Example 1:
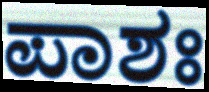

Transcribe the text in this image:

ಪಾಶಃ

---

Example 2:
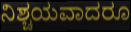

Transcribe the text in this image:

ನಿಶ್ಚಯವಾದರೂ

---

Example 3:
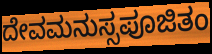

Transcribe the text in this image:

ದೇವಮನುಸ್ಸಪೂಜಿತಂ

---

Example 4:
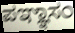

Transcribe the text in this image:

ಪಞ್ಞಾಸಂ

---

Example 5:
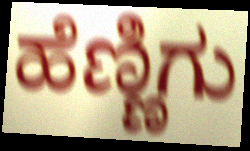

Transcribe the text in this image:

ಹೆಣ್ಣಿಗು